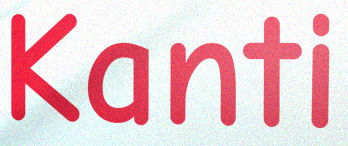
Kanti